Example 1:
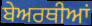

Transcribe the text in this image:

ਬੇਅਰਥੀਆਂ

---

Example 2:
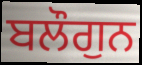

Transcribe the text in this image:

ਬਲੌਗੁਨ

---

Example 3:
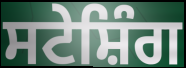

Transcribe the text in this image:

ਸਟੇਸ਼ਿੰਗ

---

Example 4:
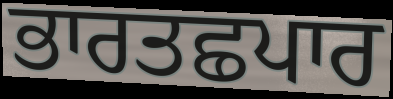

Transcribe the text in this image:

ਭਾਰਤਛਪਾਰ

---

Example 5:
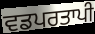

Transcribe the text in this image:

ਵਡਪਰਤਾਪੀ